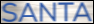
SANTA